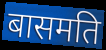
बासमति